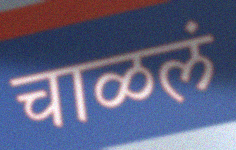
चाळलं